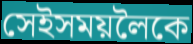
সেইসময়লৈকে